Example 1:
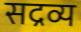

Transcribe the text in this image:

सद्रव्य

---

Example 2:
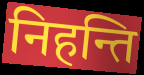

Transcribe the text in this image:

निहन्ति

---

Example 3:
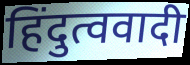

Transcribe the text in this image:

हिंदुत्ववादी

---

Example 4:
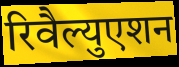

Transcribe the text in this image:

रिवैल्युएशन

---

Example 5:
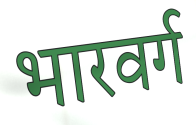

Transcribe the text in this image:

भारवर्ग